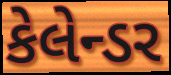
કેલેન્ડર